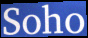
Soho